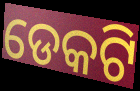
ଡେକଟି